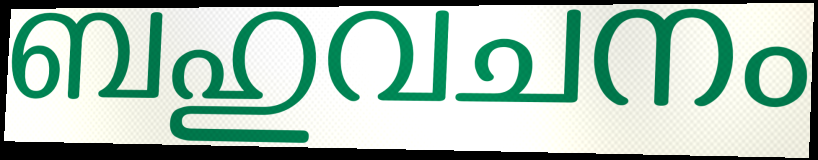
ബഹുവചനം